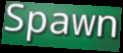
Spawn